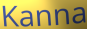
Kanna